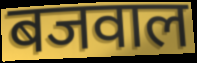
बजवाल